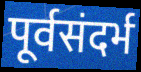
पूर्वसंदर्भ